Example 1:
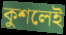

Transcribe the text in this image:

কুশলেই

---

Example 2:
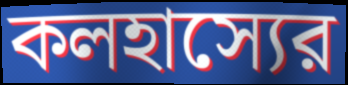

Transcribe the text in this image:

কলহাস্যের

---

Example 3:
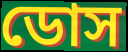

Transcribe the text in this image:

ডোস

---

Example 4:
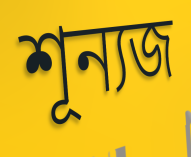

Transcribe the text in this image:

শূন্যজ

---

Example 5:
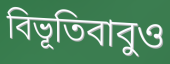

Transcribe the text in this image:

বিভূতিবাবুও